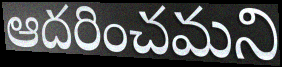
ఆదరించమని